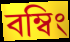
বম্বিং